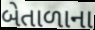
બેતાળાના